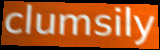
clumsily